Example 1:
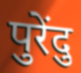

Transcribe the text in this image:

पुरेंदु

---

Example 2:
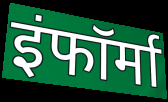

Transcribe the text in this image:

इंफॉर्मा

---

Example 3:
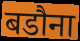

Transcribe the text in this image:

बडौना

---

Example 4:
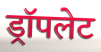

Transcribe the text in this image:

ड्रॉपलेट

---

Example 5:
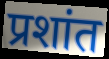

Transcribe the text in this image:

प्रशांत